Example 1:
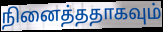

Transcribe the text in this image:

நினைத்ததாகவும்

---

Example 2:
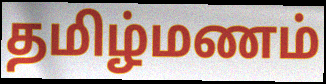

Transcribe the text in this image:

தமிழ்மணம்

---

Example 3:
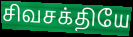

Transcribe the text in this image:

சிவசக்தியே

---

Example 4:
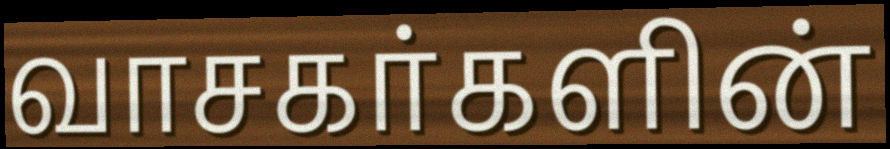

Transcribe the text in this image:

வாசகர்களின்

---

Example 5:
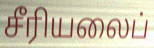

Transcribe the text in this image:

சீரியலைப்